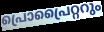
പ്രൊപ്രൈറ്ററും